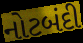
નોટબંદી